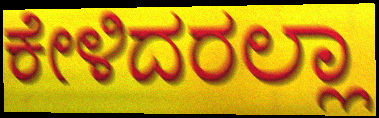
ಕೇಳಿದರಲ್ಲಾ